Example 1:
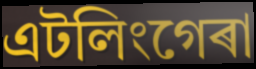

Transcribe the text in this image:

এটলিংগেৰা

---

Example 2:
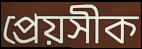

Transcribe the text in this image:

প্ৰেয়সীক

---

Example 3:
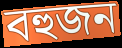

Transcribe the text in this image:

বহুজন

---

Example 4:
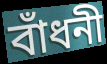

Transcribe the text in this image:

বাঁধনী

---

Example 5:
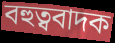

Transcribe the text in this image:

বহুত্ববাদক